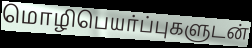
மொழிபெயர்ப்புகளுடன்